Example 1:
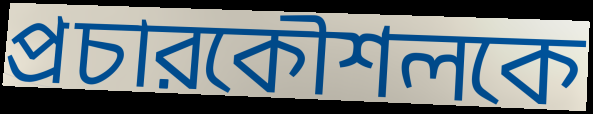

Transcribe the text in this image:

প্রচারকৌশলকে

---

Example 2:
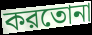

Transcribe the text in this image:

করতোনা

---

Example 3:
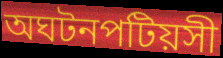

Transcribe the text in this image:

অঘটনপটিয়সী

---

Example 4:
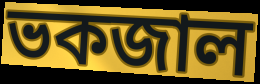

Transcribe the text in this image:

ভকজাল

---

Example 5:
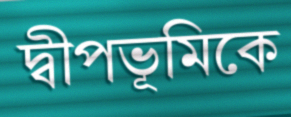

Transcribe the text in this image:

দ্বীপভূমিকে